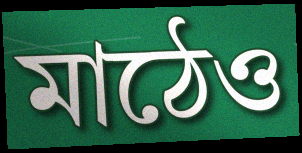
মাঠেও